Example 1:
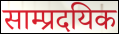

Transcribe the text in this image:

साम्प्रदयिक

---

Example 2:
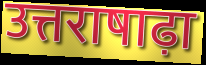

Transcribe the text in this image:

उत्तराषाढ़ा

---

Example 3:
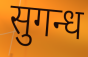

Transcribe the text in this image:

सुगन्ध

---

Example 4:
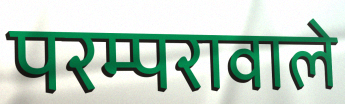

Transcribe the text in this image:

परम्परावाले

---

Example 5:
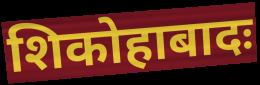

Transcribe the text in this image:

शिकोहाबादः